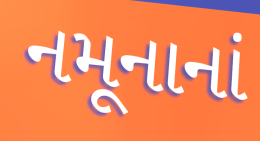
નમૂનાનાં